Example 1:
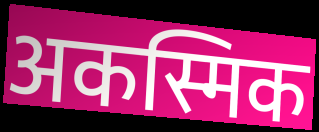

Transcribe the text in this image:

अकस्मिक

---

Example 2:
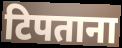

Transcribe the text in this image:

टिपताना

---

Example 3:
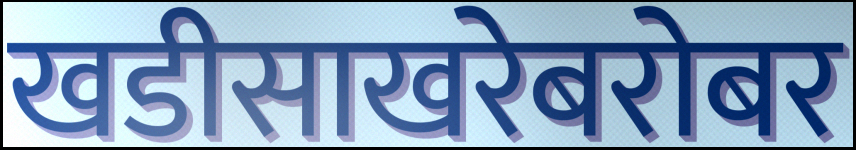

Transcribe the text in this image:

खडीसाखरेबरोबर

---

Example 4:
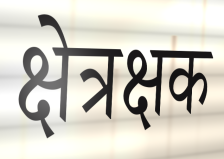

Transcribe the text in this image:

क्षेत्रक्षक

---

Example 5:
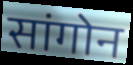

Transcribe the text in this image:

सांगोन